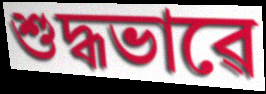
শুদ্ধভাৱে